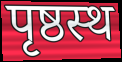
पृष्ठस्थ